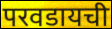
परवडायची